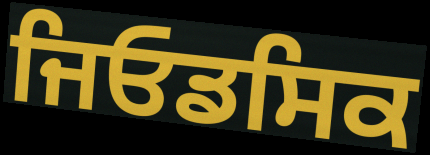
ਜਿਓਡਸਿਕ